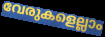
വേരുകളെല്ലാം